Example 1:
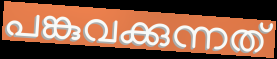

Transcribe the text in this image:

പങ്കുവക്കുന്നത്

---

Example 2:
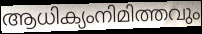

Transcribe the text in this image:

ആധിക്യംനിമിത്തവും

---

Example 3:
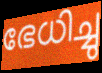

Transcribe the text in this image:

ഭേധിച്ചു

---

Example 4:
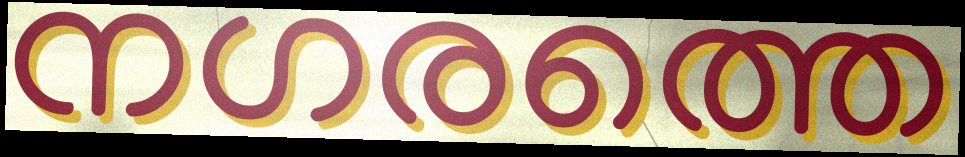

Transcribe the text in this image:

നഗരത്തെ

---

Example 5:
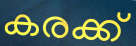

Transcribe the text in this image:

കരക്ക്